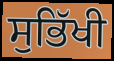
ਸੁਭਿੱਖੀ